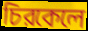
চিরকেলে